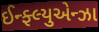
ઈન્ફ્લ્યુએન્ઝા